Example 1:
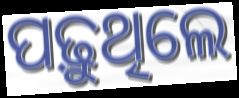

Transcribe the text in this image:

ପଢ଼ୁଥିଲେ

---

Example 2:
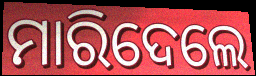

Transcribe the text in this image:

ମାରିଦେଲେ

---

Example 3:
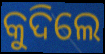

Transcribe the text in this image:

କୁଦିଲେ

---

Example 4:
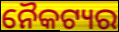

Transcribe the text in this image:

ନୈକଟ୍ୟର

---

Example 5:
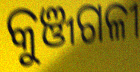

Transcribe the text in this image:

କୁଞ୍ଜଗଳୀ